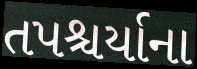
તપશ્ચર્યાના